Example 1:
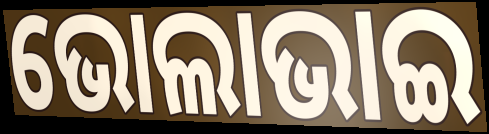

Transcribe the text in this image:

ଭୋଲାଭାଇ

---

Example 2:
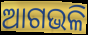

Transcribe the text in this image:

ଆଗଭଳି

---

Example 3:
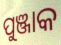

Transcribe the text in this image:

ପୁଞ୍ଜାକ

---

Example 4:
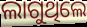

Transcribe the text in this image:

ଲାଗୁଥିଲେ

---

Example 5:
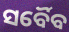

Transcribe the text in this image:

ସର୍ବୈବ